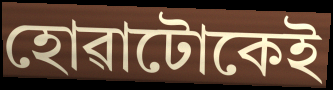
হোৱাটোকেই